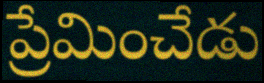
ప్రేమించేడు